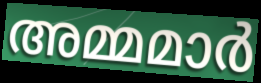
അമ്മമാർ